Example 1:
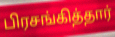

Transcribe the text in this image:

பிரசங்கித்தார்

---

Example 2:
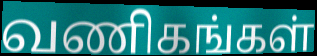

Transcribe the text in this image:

வணிகங்கள்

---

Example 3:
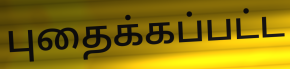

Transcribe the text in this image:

புதைக்கப்பட்ட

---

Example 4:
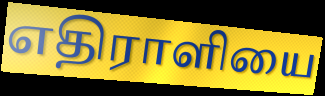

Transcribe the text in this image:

எதிராளியை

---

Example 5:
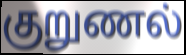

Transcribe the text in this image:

குறுணல்